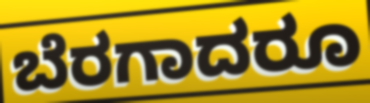
ಬೆರಗಾದರೂ